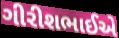
ગીરીશભાઈએ